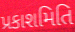
પ્રકાશમિતિ